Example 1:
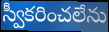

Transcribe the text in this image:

స్వీకరించలేను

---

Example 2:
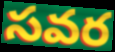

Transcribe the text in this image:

సవర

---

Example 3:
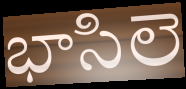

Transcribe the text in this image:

భాసిలె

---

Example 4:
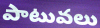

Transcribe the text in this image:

పాటువలు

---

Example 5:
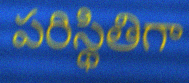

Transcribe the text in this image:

పరిస్థితిగా